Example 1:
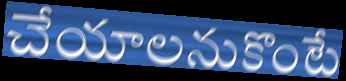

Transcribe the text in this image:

చేయాలనుకొంటే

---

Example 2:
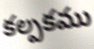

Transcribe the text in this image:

కల్పకము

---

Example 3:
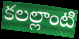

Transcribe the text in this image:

కలల్లాంటి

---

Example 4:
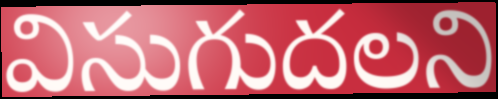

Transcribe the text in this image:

విసుగుదలని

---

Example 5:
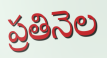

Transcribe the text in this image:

ప్రతినెల